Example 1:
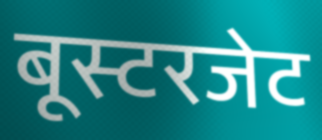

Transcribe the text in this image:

बूस्टरजेट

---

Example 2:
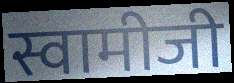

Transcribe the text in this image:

स्‍वामीजी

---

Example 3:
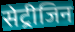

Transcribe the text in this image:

सेट्रीजिन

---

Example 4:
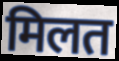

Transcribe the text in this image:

मिलत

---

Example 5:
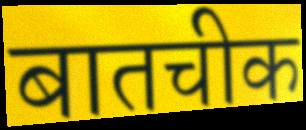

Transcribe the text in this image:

बातचीक